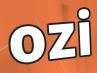
ozi